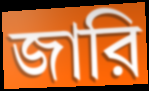
জারি